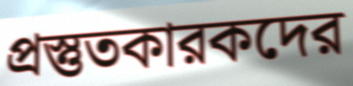
প্রস্তুতকারকদের